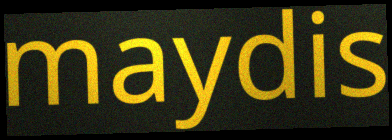
maydis